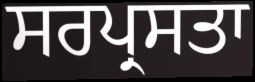
ਸਰਪ੍ਰਸਤਾ